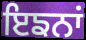
ਇਙਨਾਂ